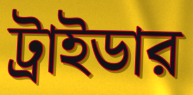
ট্রাইডার